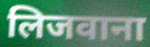
लिजवाना